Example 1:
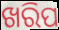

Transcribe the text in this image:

ଖରିପ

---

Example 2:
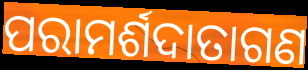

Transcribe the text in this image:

ପରାମର୍ଶଦାତାଗଣ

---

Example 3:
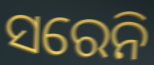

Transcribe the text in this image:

ସରେନି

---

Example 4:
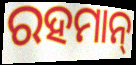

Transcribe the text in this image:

ରହମାନ୍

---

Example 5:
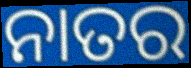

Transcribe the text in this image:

ନାତର